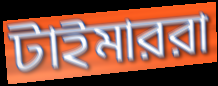
টাইমাররা